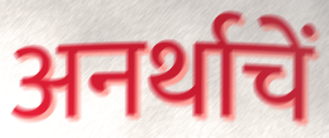
अनर्थाचें